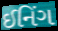
ઈનિંગ